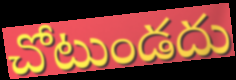
చోటుండదు